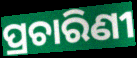
ପ୍ରଚାରିଣୀ